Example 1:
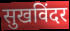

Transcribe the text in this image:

सुखविंदर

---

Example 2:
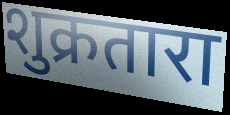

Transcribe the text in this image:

शुक्रतारा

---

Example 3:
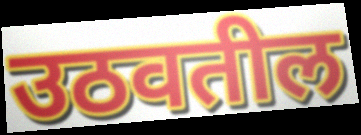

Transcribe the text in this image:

उठवतील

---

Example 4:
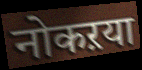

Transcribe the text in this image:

नोकऱया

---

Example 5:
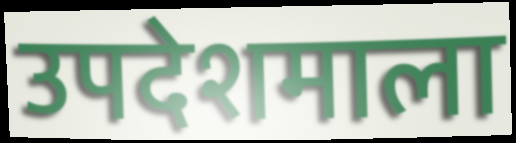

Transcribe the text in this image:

उपदेशमाला